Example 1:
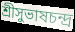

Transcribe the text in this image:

শ্রীসুভাষচন্দ্র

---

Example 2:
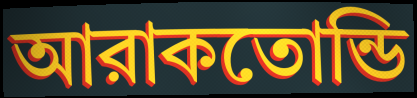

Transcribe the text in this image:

আরাকতোন্ডি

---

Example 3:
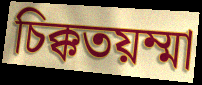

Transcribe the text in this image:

চিক্কতয়ম্মা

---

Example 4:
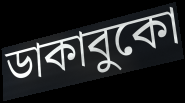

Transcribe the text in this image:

ডাকাবুকো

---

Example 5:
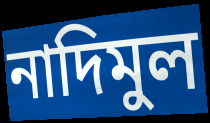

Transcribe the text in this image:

নাদিমুল